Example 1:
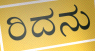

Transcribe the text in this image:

ರಿದನು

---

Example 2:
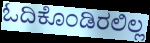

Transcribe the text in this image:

ಓದಿಕೊಂಡಿರಲಿಲ್ಲ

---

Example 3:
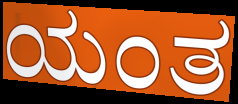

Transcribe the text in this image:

ಯಂತ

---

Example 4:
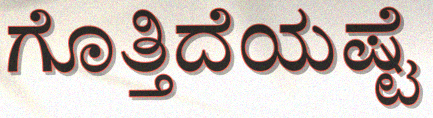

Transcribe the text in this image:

ಗೊತ್ತಿದೆಯಷ್ಟೆ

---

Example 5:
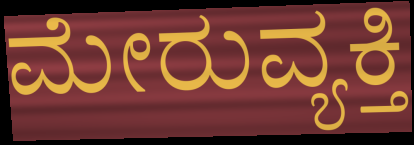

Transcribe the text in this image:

ಮೇರುವ್ಯಕ್ತಿ